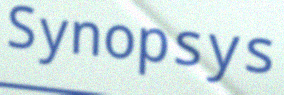
Synopsys